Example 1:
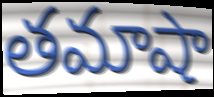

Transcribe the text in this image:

తమాషా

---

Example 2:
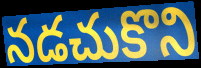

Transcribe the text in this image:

నడచుకొని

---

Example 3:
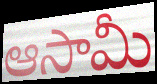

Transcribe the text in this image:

ఆసామీ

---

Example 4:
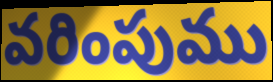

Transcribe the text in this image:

వరింపుము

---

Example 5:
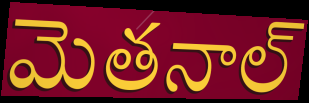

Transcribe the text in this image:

మెతనాల్